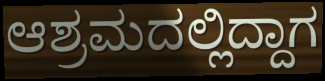
ಆಶ್ರಮದಲ್ಲಿದ್ದಾಗ